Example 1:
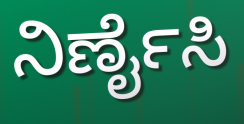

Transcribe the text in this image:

ನಿರ್ಣೈಸಿ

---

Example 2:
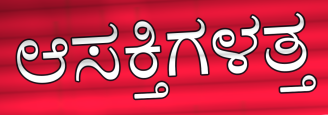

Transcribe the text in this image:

ಆಸಕ್ತಿಗಳತ್ತ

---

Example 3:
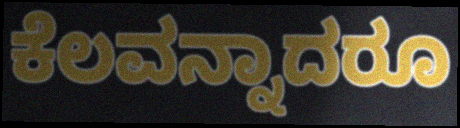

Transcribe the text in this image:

ಕೆಲವನ್ನಾದರೂ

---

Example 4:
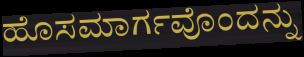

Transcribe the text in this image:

ಹೊಸಮಾರ್ಗವೊಂದನ್ನು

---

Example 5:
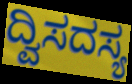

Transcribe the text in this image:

ದ್ವಿಸದಸ್ಯ